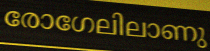
രോഗേലിലാണു